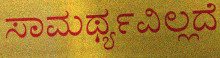
ಸಾಮರ್ಥ್ಯವಿಲ್ಲದೆ